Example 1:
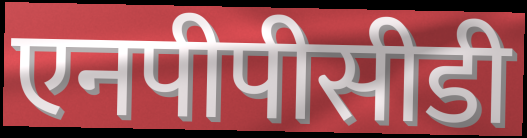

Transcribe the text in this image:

एनपीपीसीडी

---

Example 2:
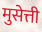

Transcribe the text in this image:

मुसेत्ती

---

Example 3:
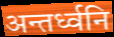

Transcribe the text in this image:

अन्तर्ध्वनि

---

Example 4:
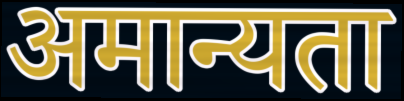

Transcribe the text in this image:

अमान्यता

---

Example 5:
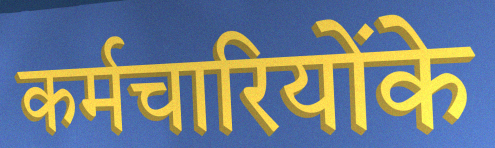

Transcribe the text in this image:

कर्मचारियोंके